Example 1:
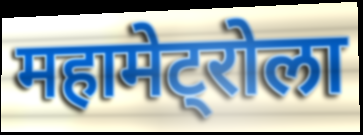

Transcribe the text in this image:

महामेट्रोला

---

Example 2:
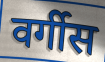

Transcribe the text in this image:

वर्गीस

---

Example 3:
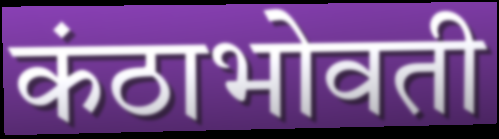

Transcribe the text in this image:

कंठाभोवती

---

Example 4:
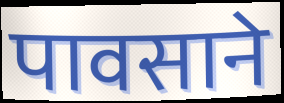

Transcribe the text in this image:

पावसाने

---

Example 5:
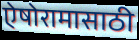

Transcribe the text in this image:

ऐषोरामासाठी